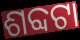
ଶବ୍ଦଟା